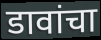
डावांचा